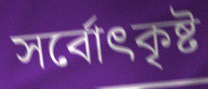
সর্বোৎকৃষ্ট